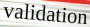
validation